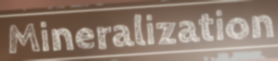
Mineralization